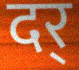
दर्